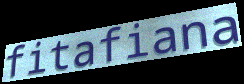
fitafiana